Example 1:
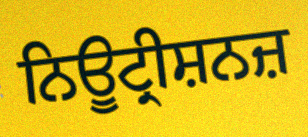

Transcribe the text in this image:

ਨਿਊਟ੍ਰੀਸ਼ਨਜ਼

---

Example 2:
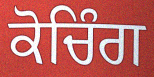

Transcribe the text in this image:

ਕੋਚਿੰਗ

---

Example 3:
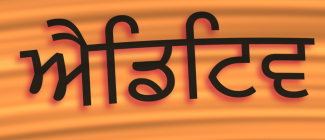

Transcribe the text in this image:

ਐਡਿਟਿਵ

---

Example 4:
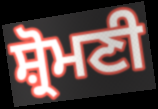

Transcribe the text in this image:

ਸ਼੍ਰੋਮਣੀ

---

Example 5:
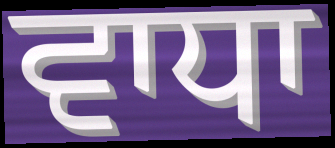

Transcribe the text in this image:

ਵਾਧਾ